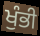
ਖੁੰਭੀ